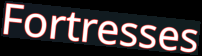
Fortresses